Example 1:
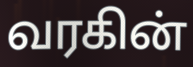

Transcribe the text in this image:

வரகின்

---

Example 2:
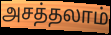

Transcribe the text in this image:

அசத்தலாம்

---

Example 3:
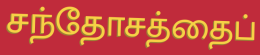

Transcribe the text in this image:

சந்தோசத்தைப்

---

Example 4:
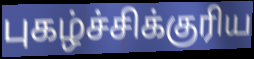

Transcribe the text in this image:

புகழ்ச்சிக்குரிய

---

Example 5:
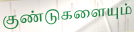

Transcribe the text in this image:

குண்டுகளையும்